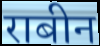
राबीन